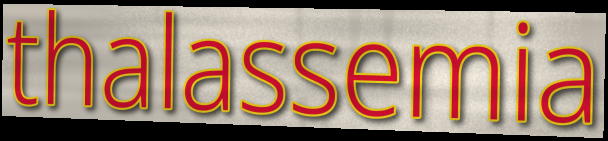
thalassemia